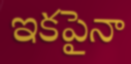
ఇకపైనా